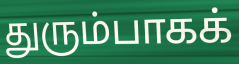
துரும்பாகக்